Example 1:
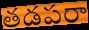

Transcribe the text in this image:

తడపరా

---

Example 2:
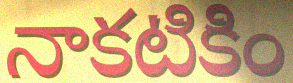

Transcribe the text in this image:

నాకటికిం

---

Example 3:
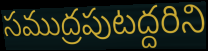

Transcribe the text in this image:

సముద్రపుటద్దరిని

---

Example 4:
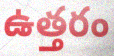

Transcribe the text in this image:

ఉత్తరం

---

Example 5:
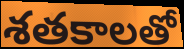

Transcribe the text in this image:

శతకాలతో